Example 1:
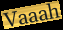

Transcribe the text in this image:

Vaaah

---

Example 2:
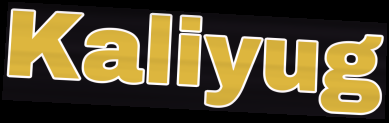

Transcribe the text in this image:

Kaliyug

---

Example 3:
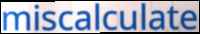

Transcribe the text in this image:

miscalculate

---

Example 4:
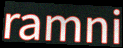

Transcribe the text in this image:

ramni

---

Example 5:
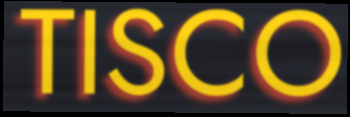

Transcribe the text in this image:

TISCO